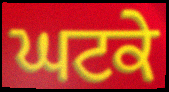
ਘਟਕੇ